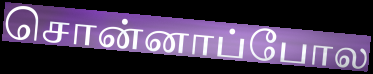
சொன்னாப்போல